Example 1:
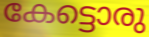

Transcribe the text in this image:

കേട്ടൊരു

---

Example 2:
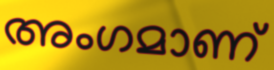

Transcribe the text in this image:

അംഗമാണ്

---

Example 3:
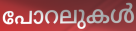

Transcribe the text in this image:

പോറലുകൾ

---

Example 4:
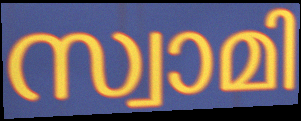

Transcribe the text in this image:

സ്വാമി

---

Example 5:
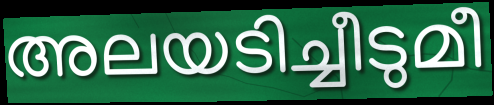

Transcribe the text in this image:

അലയടിച്ചീടുമീ